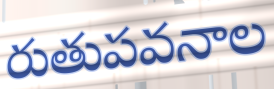
రుతుపవనాల